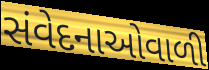
સંવેદનાઓવાળી